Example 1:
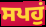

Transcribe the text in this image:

ਸਪਹੁਂ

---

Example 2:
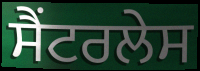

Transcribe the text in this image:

ਸੈਂਟਰਲੇਸ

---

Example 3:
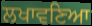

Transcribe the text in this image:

ਲਖਾਵਣਿਆ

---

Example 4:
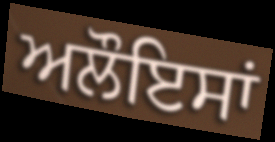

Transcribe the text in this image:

ਅਲੌਇਸਾਂ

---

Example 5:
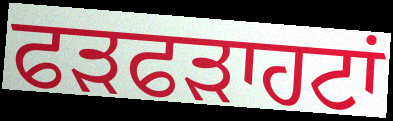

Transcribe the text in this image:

ਫੜਫੜਾਹਟਾਂ